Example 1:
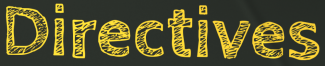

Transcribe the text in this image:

Directives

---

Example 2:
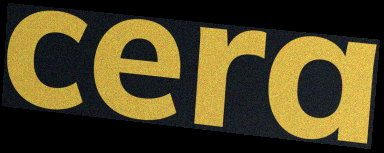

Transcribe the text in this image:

cera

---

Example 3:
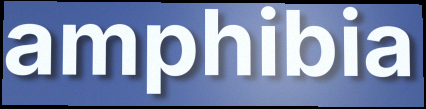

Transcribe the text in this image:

amphibia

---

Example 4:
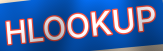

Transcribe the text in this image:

HLOOKUP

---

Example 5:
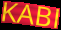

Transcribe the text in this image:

KABI